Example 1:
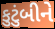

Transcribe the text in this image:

કુટુંબીને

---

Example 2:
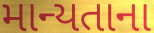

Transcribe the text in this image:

માન્યતાના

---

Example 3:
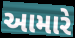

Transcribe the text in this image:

આમારે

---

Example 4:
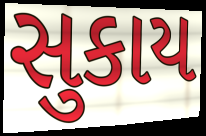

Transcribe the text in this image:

સુકાય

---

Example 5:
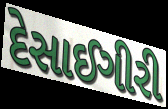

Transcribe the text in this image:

દેસાઈગીરી